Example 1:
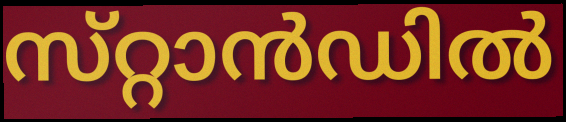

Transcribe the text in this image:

സ്‌റ്റാൻഡിൽ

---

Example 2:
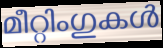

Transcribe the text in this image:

മീറ്റിംഗുകൾ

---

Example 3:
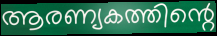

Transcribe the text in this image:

ആരണ്യകത്തിന്റെ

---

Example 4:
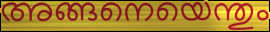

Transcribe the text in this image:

അങ്ങനെയെന്തും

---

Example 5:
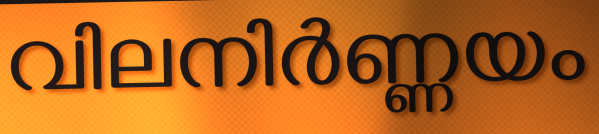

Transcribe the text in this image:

വിലനിർണ്ണയം